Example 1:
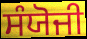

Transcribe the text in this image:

ਸੰਯੋਜੀ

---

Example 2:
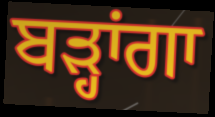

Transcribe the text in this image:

ਬੜ੍ਹਾਂਗਾ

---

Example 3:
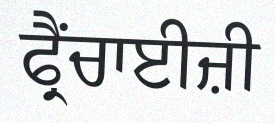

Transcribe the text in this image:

ਫ੍ਰੈਂਚਾਈਜ਼ੀ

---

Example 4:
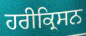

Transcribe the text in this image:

ਹਰੀਕ੍ਰਿਸਨ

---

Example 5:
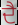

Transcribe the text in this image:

ਦੈ